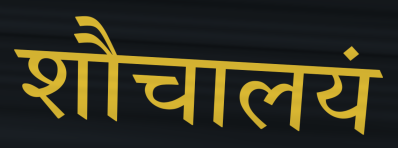
शौचालयं